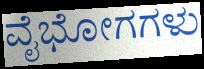
ವೈಭೋಗಗಳು